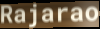
Rajarao